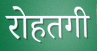
रोहतगी